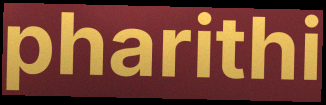
pharithi